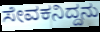
ಸೇವಕನಿದ್ದನು